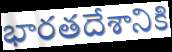
భారతదేశానికి